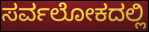
ಸರ್ವಲೋಕದಲ್ಲಿ